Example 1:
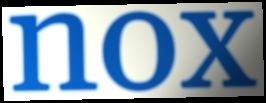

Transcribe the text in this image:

nox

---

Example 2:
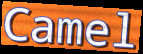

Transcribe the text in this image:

Camel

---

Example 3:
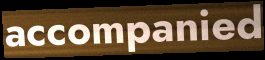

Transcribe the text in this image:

accompanied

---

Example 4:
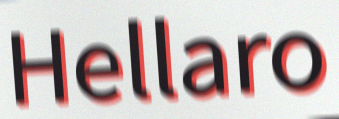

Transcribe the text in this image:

Hellaro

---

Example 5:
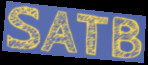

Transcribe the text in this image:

SATB